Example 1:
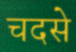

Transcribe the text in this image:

चदसे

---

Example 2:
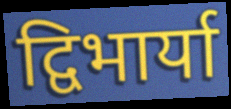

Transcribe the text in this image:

द्विभार्या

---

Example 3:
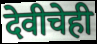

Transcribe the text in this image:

देवीचेही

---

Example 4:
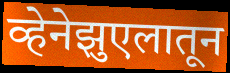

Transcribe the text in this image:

व्हेनेझुएलातून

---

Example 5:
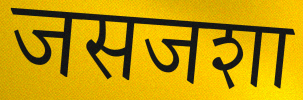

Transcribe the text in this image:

जसजशा